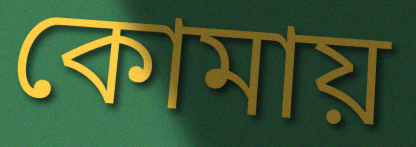
কোমায়